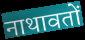
नाथावतों